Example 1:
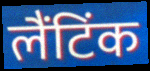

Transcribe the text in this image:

लैंटिंक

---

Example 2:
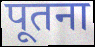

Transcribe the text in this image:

पूतना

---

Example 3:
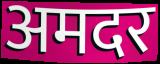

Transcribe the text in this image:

अमदर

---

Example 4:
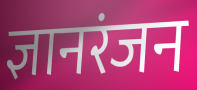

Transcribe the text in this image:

ज्ञानरंजन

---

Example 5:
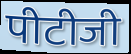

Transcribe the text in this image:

पीटीजी